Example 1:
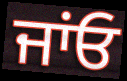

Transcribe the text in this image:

ਜਾਂਓ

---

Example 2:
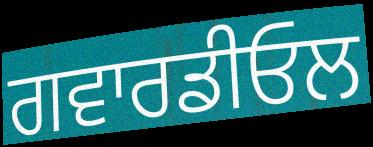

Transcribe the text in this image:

ਗਵਾਰਡੀਓਲ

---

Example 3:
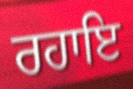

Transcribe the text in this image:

ਰਹਾਇ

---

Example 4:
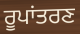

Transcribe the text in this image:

ਰੂਪਾਂਤਰਣ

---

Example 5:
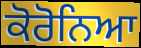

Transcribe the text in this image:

ਕੋਰੋਨਿਆ